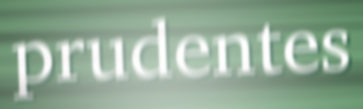
prudentes